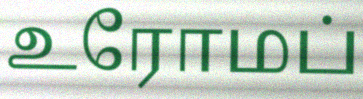
உரோமப்